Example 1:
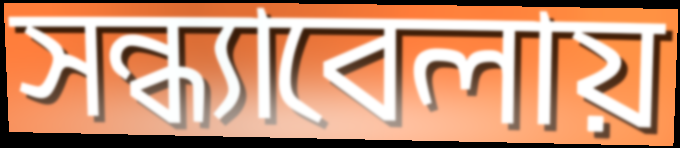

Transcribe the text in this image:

সন্ধ্যাবেলায়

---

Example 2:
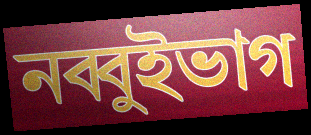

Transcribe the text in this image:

নব্বুইভাগ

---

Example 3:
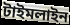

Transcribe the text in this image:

টাইমলাইন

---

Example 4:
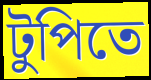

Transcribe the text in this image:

টুপিতে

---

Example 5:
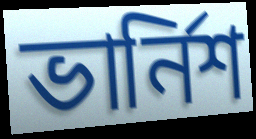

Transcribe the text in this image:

ভার্নিশ